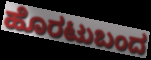
ಹೊರಟುಬಂದ